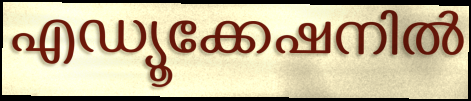
എഡ്യൂക്കേഷനിൽ